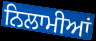
ਨਿਲਾਮੀਆਂ